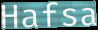
Hafsa